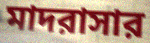
মাদরাসার